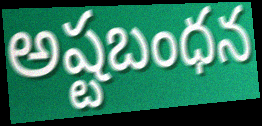
అష్టబంధన